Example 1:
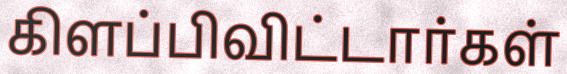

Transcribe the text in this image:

கிளப்பிவிட்டார்கள்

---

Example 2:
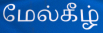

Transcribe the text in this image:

மேல்கீழ்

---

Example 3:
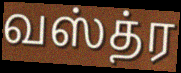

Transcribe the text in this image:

வஸ்த்ர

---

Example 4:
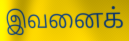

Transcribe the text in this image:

இவனைக்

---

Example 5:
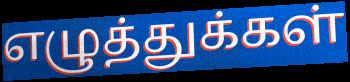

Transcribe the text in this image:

எழுத்துக்கள்